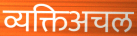
व्यक्तिअचल